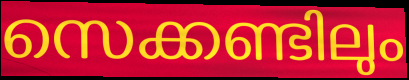
സെക്കണ്ടിലും